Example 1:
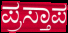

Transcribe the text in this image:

ಪ್ರಸ್ತಾಪ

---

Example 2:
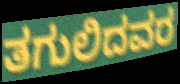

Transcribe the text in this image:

ತಗುಲಿದವರ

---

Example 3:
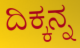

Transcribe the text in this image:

ದಿಕ್ಕನ್ನ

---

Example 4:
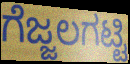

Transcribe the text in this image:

ಗೆಜ್ಜಲಗಟ್ಟಿ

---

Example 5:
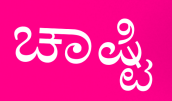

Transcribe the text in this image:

ಚಾಷ್ಟಿ